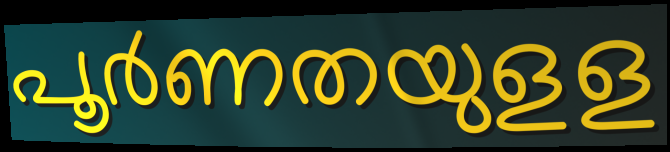
പൂർണതയുളള